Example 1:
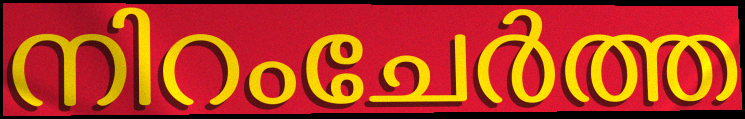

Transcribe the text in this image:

നിറംചേർത്ത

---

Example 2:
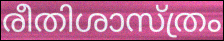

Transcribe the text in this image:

രീതിശാസ്ത്രം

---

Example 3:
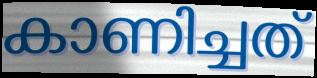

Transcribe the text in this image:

കാണിച്ചത്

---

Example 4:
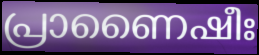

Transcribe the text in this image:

പ്രാണൈഷീഃ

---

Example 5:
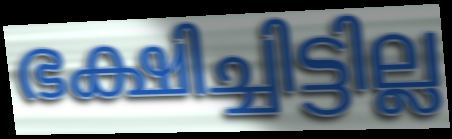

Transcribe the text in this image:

ഭക്ഷിച്ചിട്ടില്ല